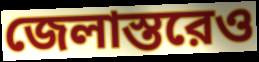
জেলাস্তরেও